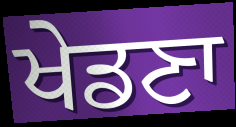
ਖੇਡਣਾ